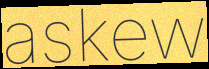
askew